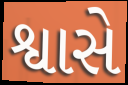
શ્વાસે